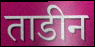
ताडीन